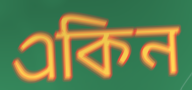
একিন